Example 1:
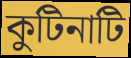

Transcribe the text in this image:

কুটিনাটি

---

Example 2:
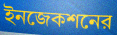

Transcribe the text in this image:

ইনজেকশনের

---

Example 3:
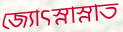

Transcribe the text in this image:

জ্যোৎস্নাস্নাত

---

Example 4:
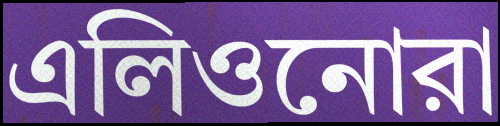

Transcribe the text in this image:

এলিওনোরা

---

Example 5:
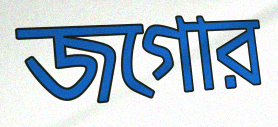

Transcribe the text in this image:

জগোর